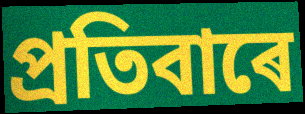
প্ৰতিবাৰে